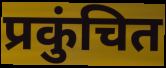
प्रकुंचित